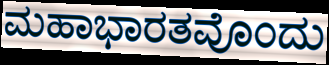
ಮಹಾಭಾರತವೊಂದು